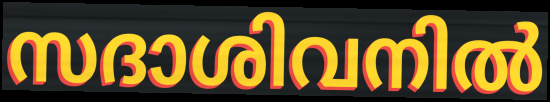
സദാശിവനിൽ